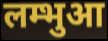
लम्भुआ